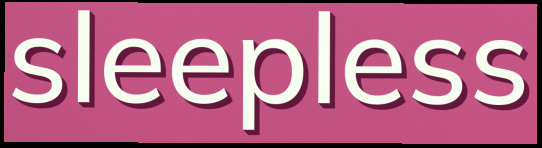
sleepless